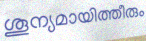
ശൂന്യമായിത്തീരും